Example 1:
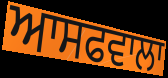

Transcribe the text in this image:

ਆਸਫਵਾਲਾ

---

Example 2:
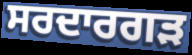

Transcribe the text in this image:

ਸਰਦਾਰਗੜ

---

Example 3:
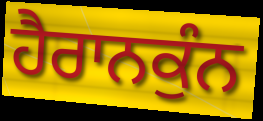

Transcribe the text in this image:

ਹੈਰਾਨਕੁੰਨ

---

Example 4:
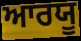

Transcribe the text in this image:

ਆਰਯੂ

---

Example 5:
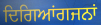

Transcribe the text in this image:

ਦਿਗਿਆਂਗਜਨਾਂ